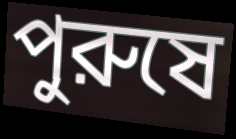
পুৰুষে